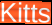
Kitts